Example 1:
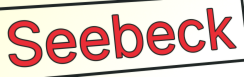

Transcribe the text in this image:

Seebeck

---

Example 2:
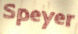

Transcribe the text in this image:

Speyer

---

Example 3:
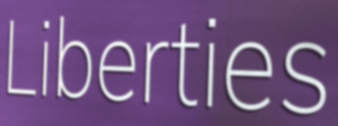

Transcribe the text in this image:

Liberties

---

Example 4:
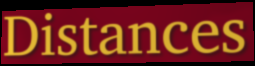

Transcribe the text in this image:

Distances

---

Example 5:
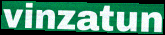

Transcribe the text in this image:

vinzatun